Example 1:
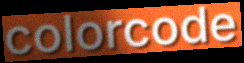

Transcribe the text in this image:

colorcode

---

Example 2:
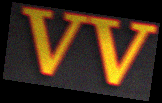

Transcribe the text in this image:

vv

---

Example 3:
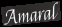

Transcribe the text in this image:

Amaral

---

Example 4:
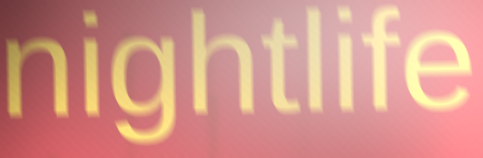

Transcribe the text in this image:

nightlife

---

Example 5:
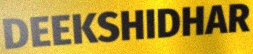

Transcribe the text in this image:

DEEKSHIDHAR